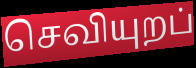
செவியுறப்